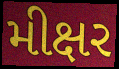
મીક્ષર